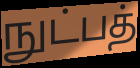
நுட்பத்